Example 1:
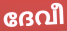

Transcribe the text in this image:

ദേവീ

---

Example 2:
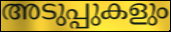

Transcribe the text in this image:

അടുപ്പുകളും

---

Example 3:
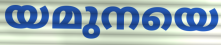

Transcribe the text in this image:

യമുനയെ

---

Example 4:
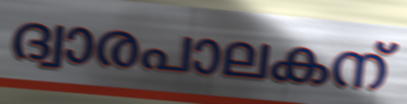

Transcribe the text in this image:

ദ്വാരപാലകന്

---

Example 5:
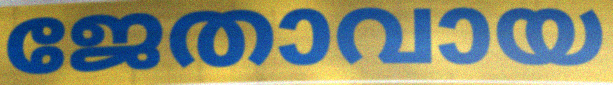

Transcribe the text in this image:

ജേതാവായ